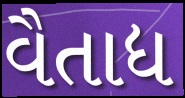
વૈતાદ્ય